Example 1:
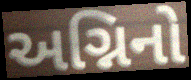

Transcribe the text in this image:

અગ્નિનો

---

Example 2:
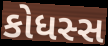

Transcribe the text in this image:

કોધસ્સ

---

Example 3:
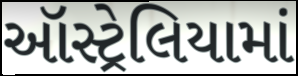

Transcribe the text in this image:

ઑસ્ટ્રેલિયામાં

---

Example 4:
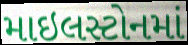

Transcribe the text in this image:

માઇલસ્ટોનમાં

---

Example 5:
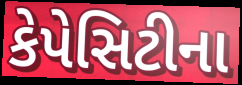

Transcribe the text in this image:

કેપેસિટીના